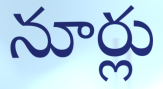
నూర్లు